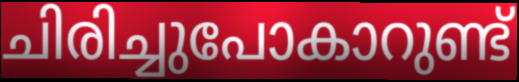
ചിരിച്ചുപോകാറുണ്ട്